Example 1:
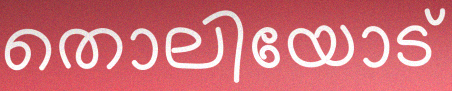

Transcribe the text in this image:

തൊലിയോട്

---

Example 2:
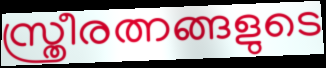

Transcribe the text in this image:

സ്ത്രീരത്നങ്ങളുടെ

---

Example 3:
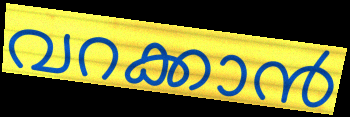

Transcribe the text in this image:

വറക്കാൻ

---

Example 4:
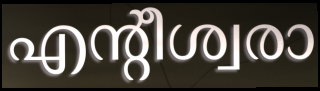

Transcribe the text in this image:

എന്റീശ്വരാ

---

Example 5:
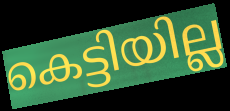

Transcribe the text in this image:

കെട്ടിയില്ല